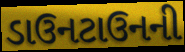
ડાઉનટાઉનની